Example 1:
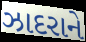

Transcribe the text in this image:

ઝાદરાને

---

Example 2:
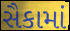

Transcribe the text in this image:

સૈકામાં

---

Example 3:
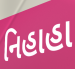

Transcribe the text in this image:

નિહાહા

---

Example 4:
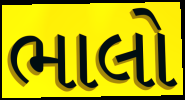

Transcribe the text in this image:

ભાલો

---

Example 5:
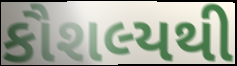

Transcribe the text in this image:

કૌશલ્યથી